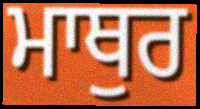
ਮਾਥੁਰ